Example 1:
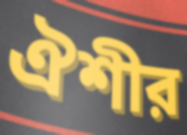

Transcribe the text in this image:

ঐশীর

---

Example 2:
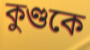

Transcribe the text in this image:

কুণ্ডকে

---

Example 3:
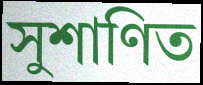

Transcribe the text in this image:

সুশাণিত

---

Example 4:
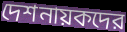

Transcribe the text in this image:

দেশনায়কদের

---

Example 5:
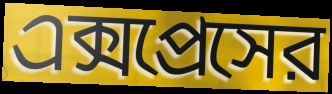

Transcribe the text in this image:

এক্সপ্রেসের